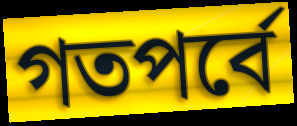
গতপর্বে